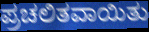
ಪ್ರಚಲಿತವಾಯಿತು